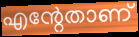
എന്റേതാണ്